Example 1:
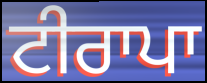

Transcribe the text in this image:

ਟੀਰਾਪਾ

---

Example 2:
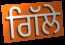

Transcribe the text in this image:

ਗਿੱਲੇ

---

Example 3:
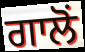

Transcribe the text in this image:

ਗਾਲੋਂ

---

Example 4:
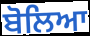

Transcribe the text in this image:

ਬੋਲਿਆ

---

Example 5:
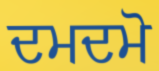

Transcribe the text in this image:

ਦਮਦਮੋ